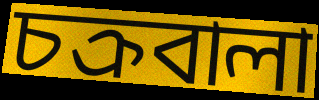
চক্রবালা